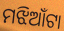
ମଝିଆଁଟା